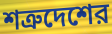
শত্রুদেশের